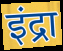
इंद्रा